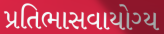
પ્રતિભાસવાયોગ્ય